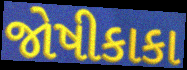
જોષીકાકા